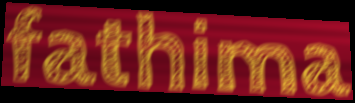
fathima